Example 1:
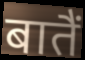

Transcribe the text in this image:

बातैं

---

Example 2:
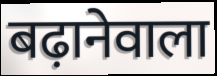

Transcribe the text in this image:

बढ़ानेवाला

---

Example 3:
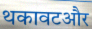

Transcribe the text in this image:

थकावटऔर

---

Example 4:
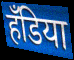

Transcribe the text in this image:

हँडिया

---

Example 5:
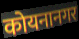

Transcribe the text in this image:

कोयनानगर